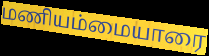
மணியம்மையாரை